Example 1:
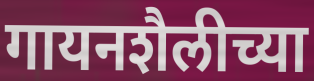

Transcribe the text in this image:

गायनशैलीच्या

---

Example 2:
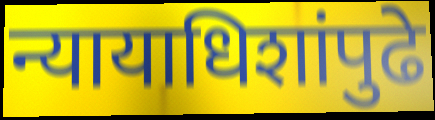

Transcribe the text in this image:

न्यायाधिशांपुढे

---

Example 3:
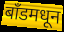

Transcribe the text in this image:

बाँडमधून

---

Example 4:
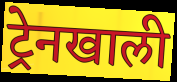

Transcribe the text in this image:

ट्रेनखाली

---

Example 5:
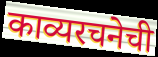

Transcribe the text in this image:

काव्यरचनेची